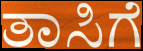
ತಾಸಿಗೆ